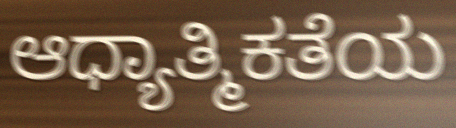
ಆಧ್ಯಾತ್ಮಿಕತೆಯ